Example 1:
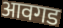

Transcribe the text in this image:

आवगड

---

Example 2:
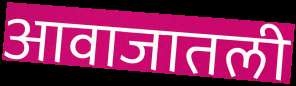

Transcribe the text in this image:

आवाजातली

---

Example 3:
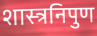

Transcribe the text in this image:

शास्त्रनिपुण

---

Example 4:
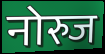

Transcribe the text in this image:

नोरुज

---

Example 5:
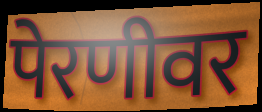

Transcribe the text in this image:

पेरणीवर